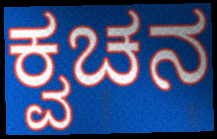
ಕ್ವಚನ